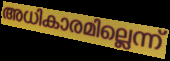
അധികാരമില്ലെന്ന്